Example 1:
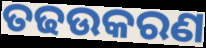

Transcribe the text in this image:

ତଢଉକରଣ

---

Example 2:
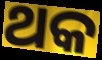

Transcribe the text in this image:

ଥକ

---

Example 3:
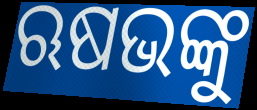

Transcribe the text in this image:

ଋଷଭଙ୍କୁ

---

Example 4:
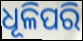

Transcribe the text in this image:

ଧୂଳିପରି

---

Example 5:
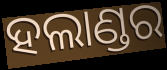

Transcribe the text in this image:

ହଲାଣ୍ଡର